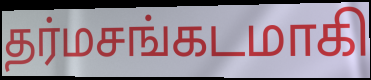
தர்மசங்கடமாகி